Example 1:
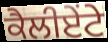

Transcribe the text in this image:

ਕੈਲੀਏਂਟੇ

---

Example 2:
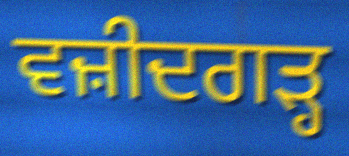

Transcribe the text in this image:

ਵਜ਼ੀਦਗੜ੍ਹ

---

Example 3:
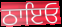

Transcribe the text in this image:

ਠਾਇਓ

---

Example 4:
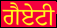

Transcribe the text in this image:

ਗੈਏਟੀ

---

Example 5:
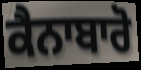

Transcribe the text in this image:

ਕੈਨਾਬਾਰੋ